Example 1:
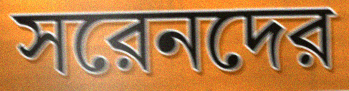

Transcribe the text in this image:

সরেনদের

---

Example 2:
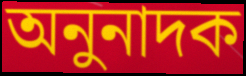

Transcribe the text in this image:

অনুনাদক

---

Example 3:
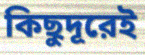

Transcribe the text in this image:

কিছুদূরেই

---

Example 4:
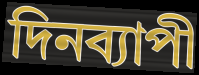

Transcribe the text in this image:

দিনব্যাপী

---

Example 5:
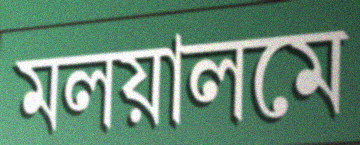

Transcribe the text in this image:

মলয়ালমে